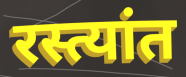
रस्त्यांत